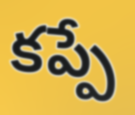
కప్పే